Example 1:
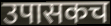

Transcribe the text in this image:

उपासकच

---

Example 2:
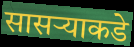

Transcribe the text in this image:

सासऱ्याकडे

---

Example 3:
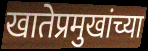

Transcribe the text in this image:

खातेप्रमुखांच्या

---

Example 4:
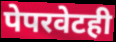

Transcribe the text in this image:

पेपरवेटही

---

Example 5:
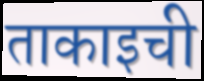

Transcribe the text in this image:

ताकाइची